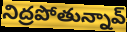
నిద్రపోతున్నావ్